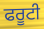
ਫਰੂਟੀ